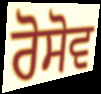
ਰੋਸੋਵ